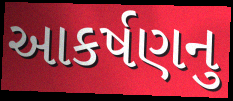
આકર્ષણનુ